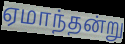
ஏமாந்தன்று